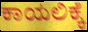
ಕಾಯಲಿಕ್ಕೆ